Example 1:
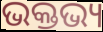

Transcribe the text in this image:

ଭକ୍ତଭ୍ୟ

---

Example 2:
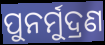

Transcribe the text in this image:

ପୁନର୍ମୁଦ୍ରଣ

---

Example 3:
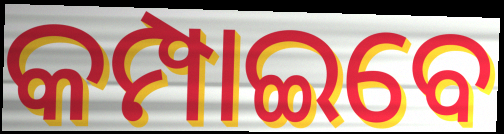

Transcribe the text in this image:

କମ୍ପାଇବେ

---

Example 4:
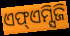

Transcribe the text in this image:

ଏଫ୍ଏମ୍ସିଜି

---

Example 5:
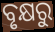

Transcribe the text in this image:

ବୃକ୍ଷରୁ